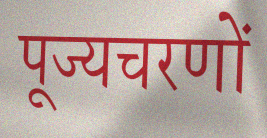
पूज्यचरणों